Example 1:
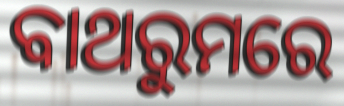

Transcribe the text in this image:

ବାଥରୁମରେ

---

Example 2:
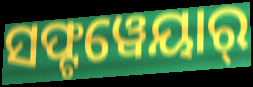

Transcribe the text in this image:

ସଫ୍ଟୱେୟାର୍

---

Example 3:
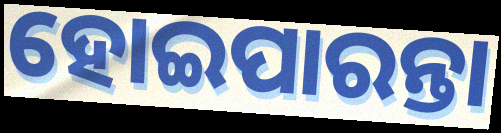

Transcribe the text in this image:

ହୋଇପାରନ୍ତା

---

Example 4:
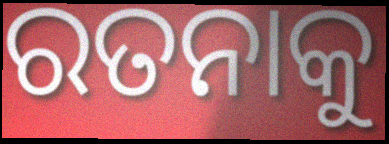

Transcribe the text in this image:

ରତନାକୁ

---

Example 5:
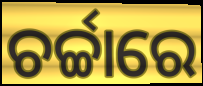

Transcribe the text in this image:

ଚର୍ଚ୍ଚାରେ